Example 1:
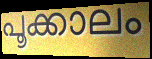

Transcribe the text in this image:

പൂക്കാലം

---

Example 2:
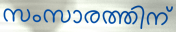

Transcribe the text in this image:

സംസാരത്തിന്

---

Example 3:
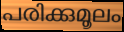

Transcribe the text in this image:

പരിക്കുമൂലം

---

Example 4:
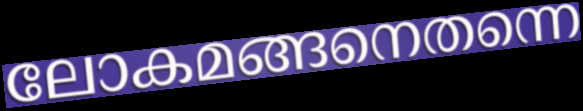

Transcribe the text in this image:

ലോകമങ്ങനെതന്നെ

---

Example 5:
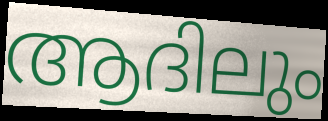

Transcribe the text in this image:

ആദിലും